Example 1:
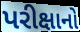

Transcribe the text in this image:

પરીક્ષાનો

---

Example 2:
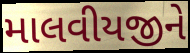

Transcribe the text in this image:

માલવીયજીને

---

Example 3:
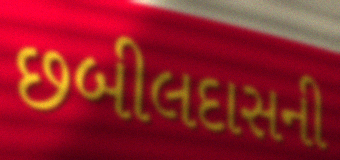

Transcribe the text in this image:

છબીલદાસની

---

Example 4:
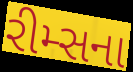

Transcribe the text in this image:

રીમ્સના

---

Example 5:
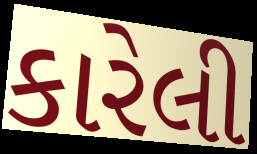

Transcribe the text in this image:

કારેલી